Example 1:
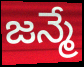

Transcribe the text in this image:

జన్మే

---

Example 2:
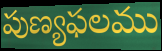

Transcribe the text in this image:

పుణ్యఫలము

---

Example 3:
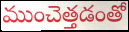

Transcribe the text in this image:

ముంచెత్తడంతో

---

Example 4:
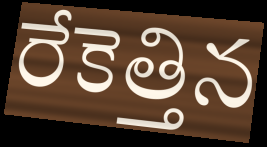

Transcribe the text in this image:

రేకెత్తిన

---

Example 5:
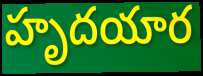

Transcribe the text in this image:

హృదయార